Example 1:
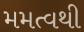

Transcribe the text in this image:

મમત્વથી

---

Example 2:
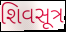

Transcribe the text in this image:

શિવસૂત્ર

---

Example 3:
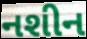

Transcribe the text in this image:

નશીન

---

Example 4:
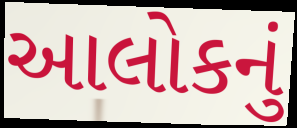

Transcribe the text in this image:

આલોકનું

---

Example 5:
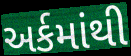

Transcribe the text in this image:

અર્કમાંથી